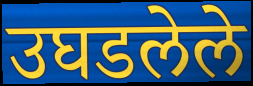
उघडलेले